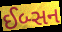
ઈબ્સન